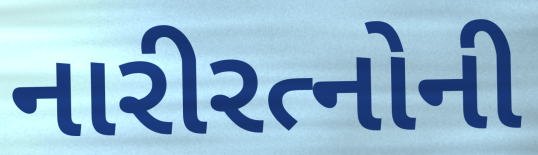
નારીરત્નોની